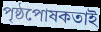
পৃষ্ঠপোষকতাই